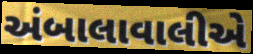
અંબાલાવાલીએ